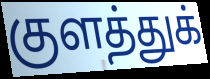
குளத்துக்